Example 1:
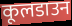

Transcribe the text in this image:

कूलडाउन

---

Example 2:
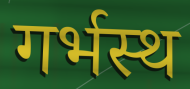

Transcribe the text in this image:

गर्भस्थ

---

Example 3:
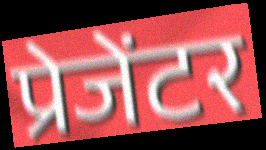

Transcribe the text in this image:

प्रेजेंटर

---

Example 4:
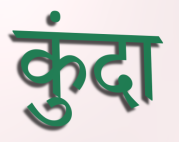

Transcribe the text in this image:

कुंदा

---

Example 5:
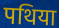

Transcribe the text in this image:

पथिया